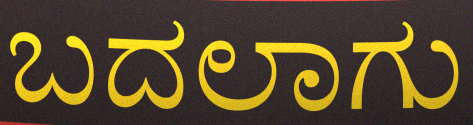
ಬದಲಾಗು